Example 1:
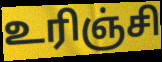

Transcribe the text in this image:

உரிஞ்சி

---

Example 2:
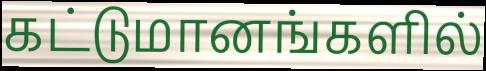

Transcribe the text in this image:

கட்டுமானங்களில்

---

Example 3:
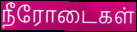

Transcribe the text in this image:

நீரோடைகள்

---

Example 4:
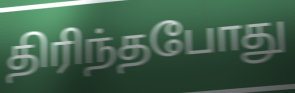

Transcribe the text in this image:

திரிந்தபோது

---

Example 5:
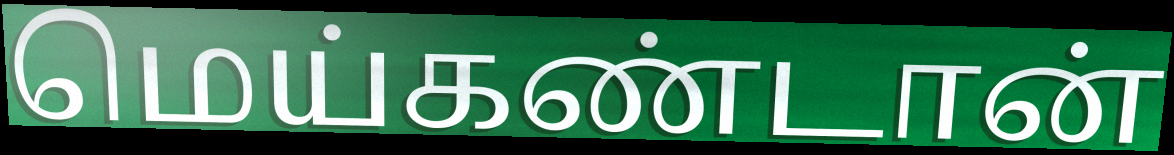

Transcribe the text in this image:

மெய்கண்டான்